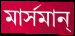
মার্সমান্